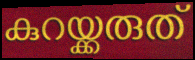
കുറയ്ക്കരുത്